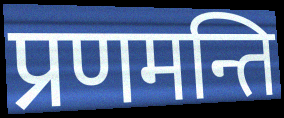
प्रणमन्ति